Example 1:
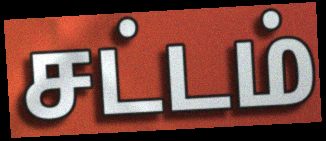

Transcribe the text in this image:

சட்டம்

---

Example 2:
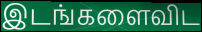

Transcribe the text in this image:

இடங்களைவிட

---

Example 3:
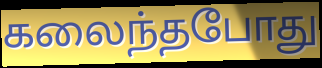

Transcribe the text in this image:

கலைந்தபோது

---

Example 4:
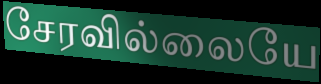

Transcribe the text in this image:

சேரவில்லையே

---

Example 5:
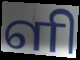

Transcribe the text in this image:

ளி